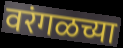
वरंगळच्या